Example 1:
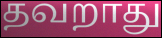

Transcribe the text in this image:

தவறாது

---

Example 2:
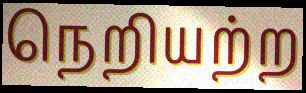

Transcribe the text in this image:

நெறியற்ற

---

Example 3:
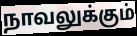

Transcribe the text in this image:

நாவலுக்கும்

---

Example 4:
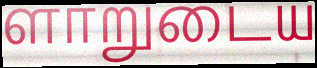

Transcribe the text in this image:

ளாறுடைய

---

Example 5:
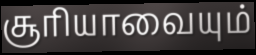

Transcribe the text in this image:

சூரியாவையும்